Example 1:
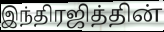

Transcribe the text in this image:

இந்திரஜித்தின்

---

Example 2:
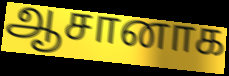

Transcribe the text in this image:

ஆசானாக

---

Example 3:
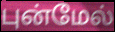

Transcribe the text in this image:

புன்மேல்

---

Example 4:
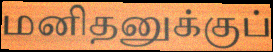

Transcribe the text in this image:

மனிதனுக்குப்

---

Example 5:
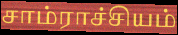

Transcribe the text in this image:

சாம்ராச்சியம்